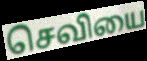
செவியை